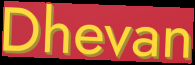
Dhevan